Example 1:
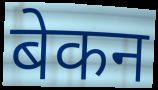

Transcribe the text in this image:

बेकन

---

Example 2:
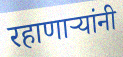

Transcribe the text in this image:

रहाणार्‍यांनी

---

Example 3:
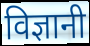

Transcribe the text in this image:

विज्ञानी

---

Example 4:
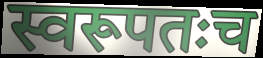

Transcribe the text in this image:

स्वरूपतःच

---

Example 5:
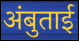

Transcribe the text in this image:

अंबुताई